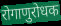
रोगाणुरोधक